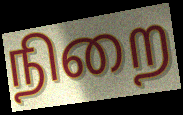
நிறை